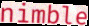
nimble